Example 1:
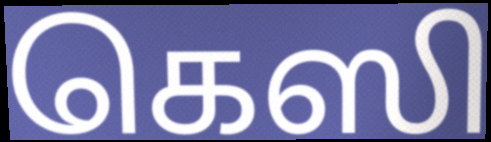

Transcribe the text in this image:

கெஸி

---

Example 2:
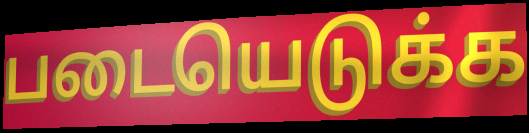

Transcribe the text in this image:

படையெடுக்க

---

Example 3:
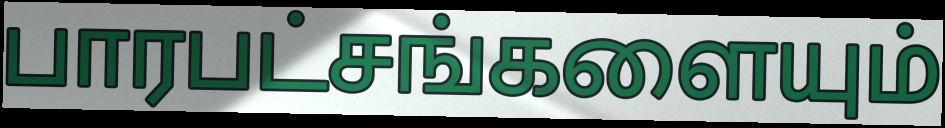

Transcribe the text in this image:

பாரபட்சங்களையும்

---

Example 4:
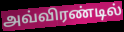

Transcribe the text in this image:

அவ்விரண்டில்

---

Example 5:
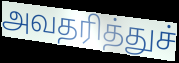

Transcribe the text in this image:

அவதரித்துச்